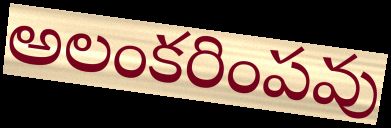
అలంకరింపవు